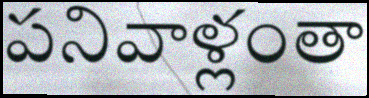
పనివాళ్లంతా